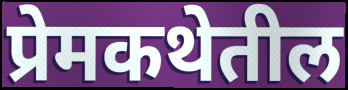
प्रेमकथेतील